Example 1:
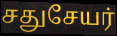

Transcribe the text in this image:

சதுசேயர்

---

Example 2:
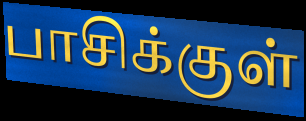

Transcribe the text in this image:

பாசிக்குள்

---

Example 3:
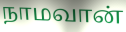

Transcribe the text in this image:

நாமவான்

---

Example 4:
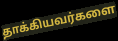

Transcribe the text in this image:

தாக்கியவர்களை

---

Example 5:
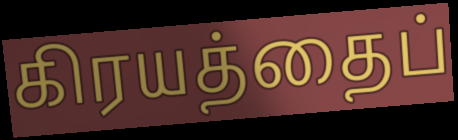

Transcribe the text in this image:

கிரயத்தைப்